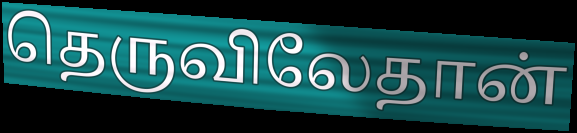
தெருவிலேதான்